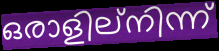
ഒരാളില്നിന്ന്